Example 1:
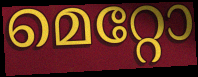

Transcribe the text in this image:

മെറ്റോ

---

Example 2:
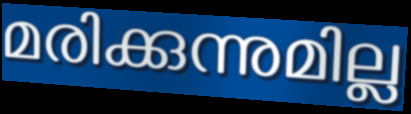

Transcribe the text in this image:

മരിക്കുന്നുമില്ല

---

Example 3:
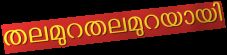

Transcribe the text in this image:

തലമുറതലമുറയായി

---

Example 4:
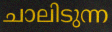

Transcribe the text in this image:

ചാലിടുന്ന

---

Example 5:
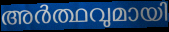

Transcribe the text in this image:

അർത്ഥവുമായി